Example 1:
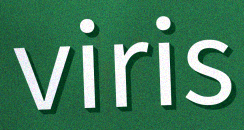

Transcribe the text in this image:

viris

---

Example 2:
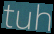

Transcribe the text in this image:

tuh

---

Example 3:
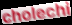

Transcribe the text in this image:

cholechi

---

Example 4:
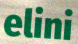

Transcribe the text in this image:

elini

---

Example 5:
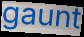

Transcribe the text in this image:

gaunt